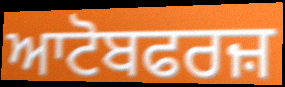
ਆਟੋਬਫਰਜ਼